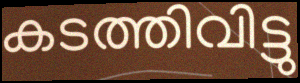
കടത്തിവിട്ടു